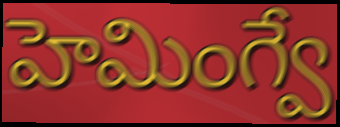
హెమింగ్వే